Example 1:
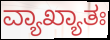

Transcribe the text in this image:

ವ್ಯಾಖ್ಯಾತಃ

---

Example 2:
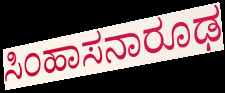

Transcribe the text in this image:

ಸಿಂಹಾಸನಾರೂಢ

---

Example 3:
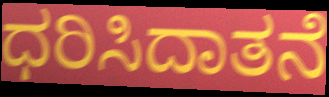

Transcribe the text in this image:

ಧರಿಸಿದಾತನೆ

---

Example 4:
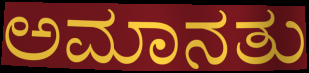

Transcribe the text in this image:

ಅಮಾನತು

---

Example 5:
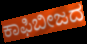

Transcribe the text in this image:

ಕಾಫಿಬೀಜದ